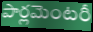
పార్లమెంటరీ